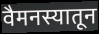
वैमनस्यातून